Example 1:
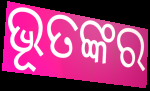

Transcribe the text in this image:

ଭୂତଙ୍କର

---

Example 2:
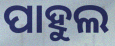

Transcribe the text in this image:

ପାହୁଲ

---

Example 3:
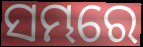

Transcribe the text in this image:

ସମ୍ଭରେ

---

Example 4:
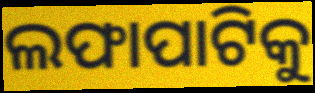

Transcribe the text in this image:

ଲଫାପାଟିକୁ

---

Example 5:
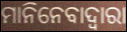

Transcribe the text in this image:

ମାନିନେବାଦ୍ୱାରା